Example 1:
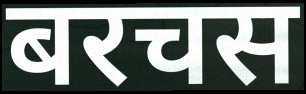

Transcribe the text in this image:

बरचस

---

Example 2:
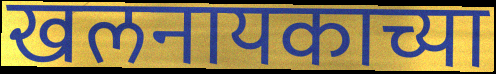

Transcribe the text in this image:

खलनायकाच्या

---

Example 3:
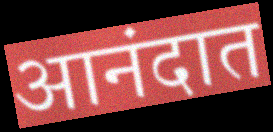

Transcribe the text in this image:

आनंदात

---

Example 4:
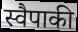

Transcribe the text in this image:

स्वैपाकी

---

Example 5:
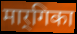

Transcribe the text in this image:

मार्गिका